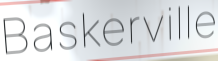
Baskerville